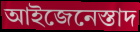
আইজেনেস্তাদ